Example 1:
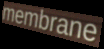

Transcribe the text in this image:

membrane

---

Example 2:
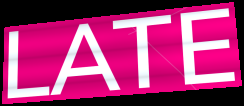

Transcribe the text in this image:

LATE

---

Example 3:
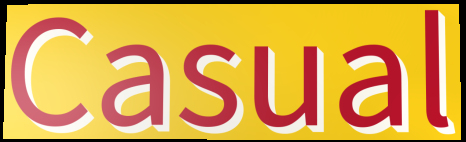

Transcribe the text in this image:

Casual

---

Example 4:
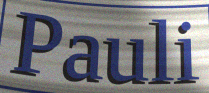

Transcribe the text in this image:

Pauli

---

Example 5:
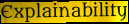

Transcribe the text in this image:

Explainability